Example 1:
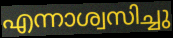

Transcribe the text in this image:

എന്നാശ്വസിച്ചു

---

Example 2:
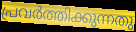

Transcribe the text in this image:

പ്രവർത്തിക്കുന്നതു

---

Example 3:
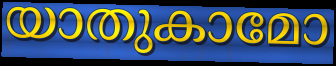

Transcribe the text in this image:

യാതുകാമോ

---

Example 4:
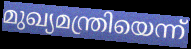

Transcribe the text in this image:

മുഖ്യമന്ത്രിയെന്ന്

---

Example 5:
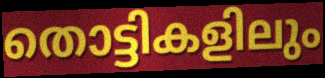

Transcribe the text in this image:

തൊട്ടികളിലും